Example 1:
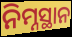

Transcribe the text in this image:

ନିମ୍ନସ୍ଥାନ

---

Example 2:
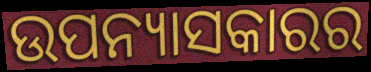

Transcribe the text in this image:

ଉପନ୍ୟାସକାରର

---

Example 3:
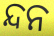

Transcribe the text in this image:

ନ୍ଦନ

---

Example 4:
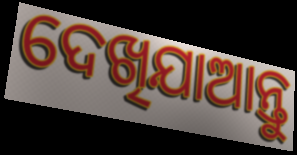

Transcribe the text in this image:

ଦେଖିଯାଆନ୍ତୁ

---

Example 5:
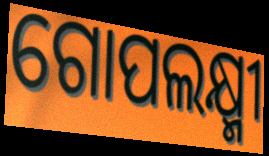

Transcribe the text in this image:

ଗୋପଲକ୍ଷ୍ମୀ